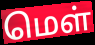
மெள்